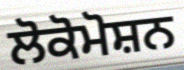
ਲੋਕੋਮੋਸ਼ਨ